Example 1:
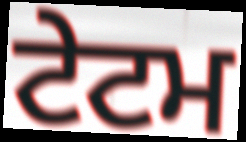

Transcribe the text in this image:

ਟੇਟਮ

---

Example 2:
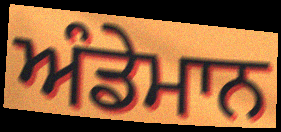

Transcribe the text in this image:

ਅੰਡੇਮਾਨ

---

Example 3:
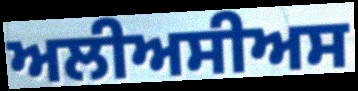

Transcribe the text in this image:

ਅਲੀਅਸੀਅਸ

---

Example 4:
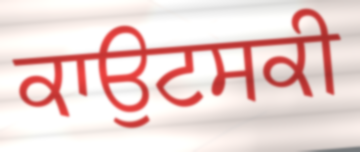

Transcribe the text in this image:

ਕਾਉਟਸਕੀ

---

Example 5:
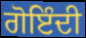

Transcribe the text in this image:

ਗੋਇੰਦੀ